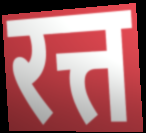
रत्त